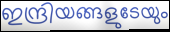
ഇന്ദ്രിയങ്ങളുടേയും